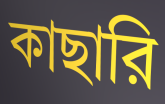
কাছারি